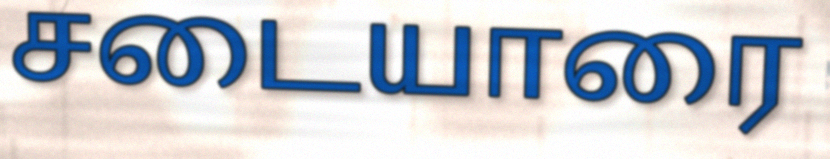
சடையாரை